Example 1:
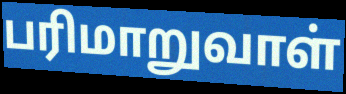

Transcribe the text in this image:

பரிமாறுவாள்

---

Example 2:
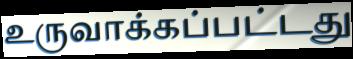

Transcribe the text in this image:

உருவாக்கப்பட்டது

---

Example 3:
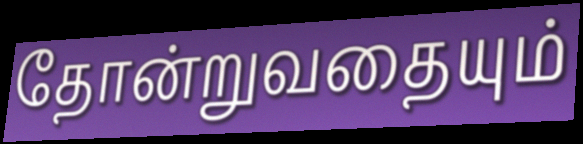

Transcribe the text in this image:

தோன்றுவதையும்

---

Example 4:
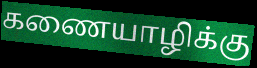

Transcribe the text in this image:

கணையாழிக்கு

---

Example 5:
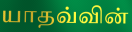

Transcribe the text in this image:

யாதவ்வின்